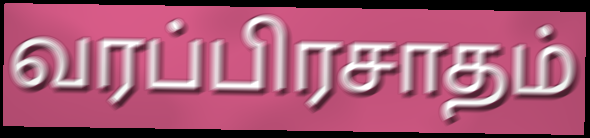
வரப்பிரசாதம்